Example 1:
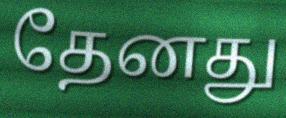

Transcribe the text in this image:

தேனது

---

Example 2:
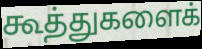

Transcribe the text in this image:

கூத்துகளைக்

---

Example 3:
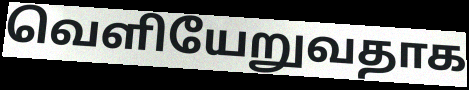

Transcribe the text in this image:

வெளியேறுவதாக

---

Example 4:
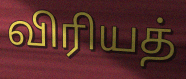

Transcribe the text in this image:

விரியத்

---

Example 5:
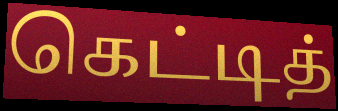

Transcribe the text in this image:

கெட்டித்